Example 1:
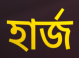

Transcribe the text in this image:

হার্জ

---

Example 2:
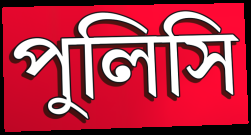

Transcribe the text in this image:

পুলিসি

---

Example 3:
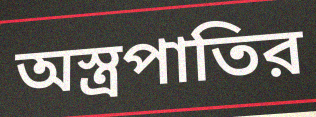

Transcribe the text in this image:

অস্ত্রপাতির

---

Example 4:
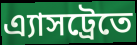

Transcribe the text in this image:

এ্যাসট্রেতে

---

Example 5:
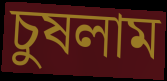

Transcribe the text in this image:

চুষলাম